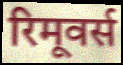
रिमूवर्स